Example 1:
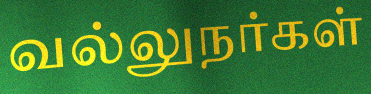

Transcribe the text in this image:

வல்லுநர்கள்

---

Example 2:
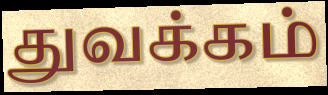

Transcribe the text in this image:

துவக்கம்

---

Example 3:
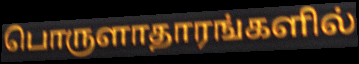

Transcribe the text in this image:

பொருளாதாரங்களில்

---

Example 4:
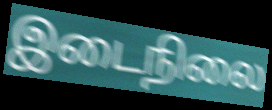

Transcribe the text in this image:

இடைநிலை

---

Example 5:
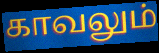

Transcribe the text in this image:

காவலும்